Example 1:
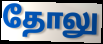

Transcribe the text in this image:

தோலு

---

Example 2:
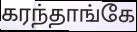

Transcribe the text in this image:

கரந்தாங்கே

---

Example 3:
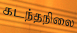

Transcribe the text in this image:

கடந்தநிலை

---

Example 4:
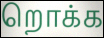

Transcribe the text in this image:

றொக்க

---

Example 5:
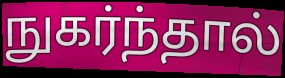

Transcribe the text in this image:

நுகர்ந்தால்